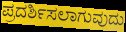
ಪ್ರದರ್ಶಿಸಲಾಗುವುದು